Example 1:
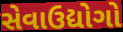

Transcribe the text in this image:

સેવાઉદ્યોગો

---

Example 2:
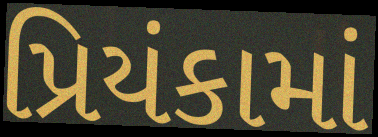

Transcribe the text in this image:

પ્રિયંકામાં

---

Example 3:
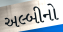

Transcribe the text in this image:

અલ્બીનો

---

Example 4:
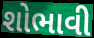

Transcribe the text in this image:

શોભાવી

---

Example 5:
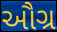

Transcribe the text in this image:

ઔગ્ર